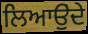
ਲਿਆਉੁਂਦੇ